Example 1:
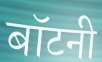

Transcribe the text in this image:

बॉटनी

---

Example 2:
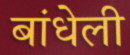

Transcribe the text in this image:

बांधेली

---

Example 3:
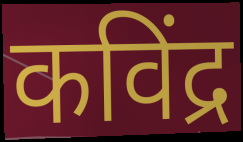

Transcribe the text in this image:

कविंद्र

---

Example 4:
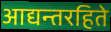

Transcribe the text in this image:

आद्यन्तरहिते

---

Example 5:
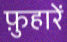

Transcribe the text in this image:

फ़ुहारें